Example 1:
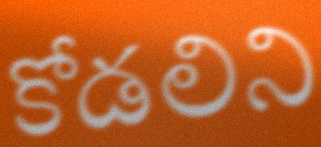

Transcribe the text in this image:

కోడలిని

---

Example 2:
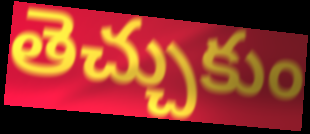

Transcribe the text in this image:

తెచ్చుకుం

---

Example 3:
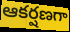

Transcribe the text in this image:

ఆకర్షణగా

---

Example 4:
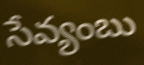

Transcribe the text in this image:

సేవ్యంబు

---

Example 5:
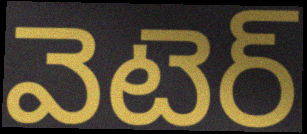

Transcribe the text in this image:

వెటెర్